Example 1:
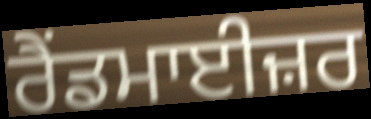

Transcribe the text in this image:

ਰੈਂਡਮਾਈਜ਼ਰ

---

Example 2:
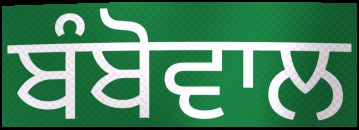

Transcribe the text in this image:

ਬੰਬੋਵਾਲ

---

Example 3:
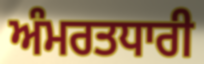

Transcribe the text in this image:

ਅੰਮਰਤਧਾਰੀ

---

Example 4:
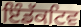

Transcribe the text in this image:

ਇੰਡੱਕਟਿਵ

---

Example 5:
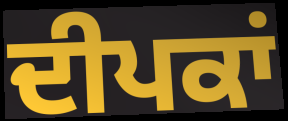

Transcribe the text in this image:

ਦੀਪਕਾਂ